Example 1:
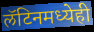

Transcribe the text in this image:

लॅटिनमध्येही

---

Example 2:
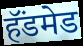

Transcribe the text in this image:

हॅंडमेड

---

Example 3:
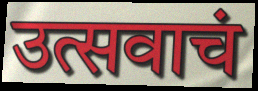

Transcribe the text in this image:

उत्सवाचं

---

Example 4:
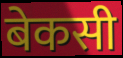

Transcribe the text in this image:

बेकसी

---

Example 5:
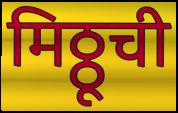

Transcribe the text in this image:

मिठ्ठूची